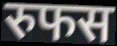
रुफस